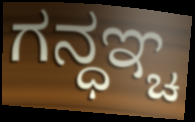
ಗನ್ಧಞ್ಚ